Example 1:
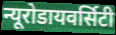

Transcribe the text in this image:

न्यूरोडायवर्सिटी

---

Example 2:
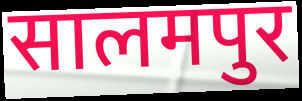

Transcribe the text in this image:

सालमपुर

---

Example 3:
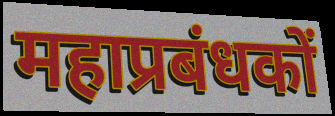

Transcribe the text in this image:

महाप्रबंधकों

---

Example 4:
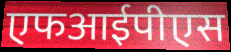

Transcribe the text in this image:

एफआईपीएस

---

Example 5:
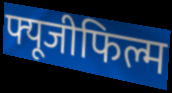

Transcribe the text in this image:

फ्यूजीफिल्म